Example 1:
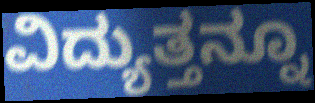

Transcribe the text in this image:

ವಿದ್ಯುತ್ತನ್ನೂ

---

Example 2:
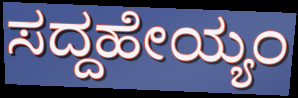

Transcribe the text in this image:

ಸದ್ದಹೇಯ್ಯಂ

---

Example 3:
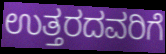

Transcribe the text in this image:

ಉತ್ತರದವರಿಗೆ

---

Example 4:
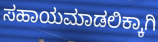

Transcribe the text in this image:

ಸಹಾಯಮಾಡಲಿಕ್ಕಾಗಿ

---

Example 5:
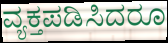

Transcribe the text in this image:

ವ್ಯಕ್ತಪಡಿಸಿದರೂ